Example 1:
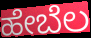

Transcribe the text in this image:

ಹೇಬೆಲ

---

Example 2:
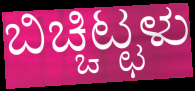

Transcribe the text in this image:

ಬಿಚ್ಚಿಟ್ಟಳು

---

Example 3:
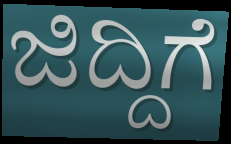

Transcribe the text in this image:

ಜಿದ್ದಿಗೆ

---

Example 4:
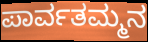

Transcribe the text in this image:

ಪಾರ್ವತಮ್ಮನ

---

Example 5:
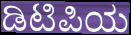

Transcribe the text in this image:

ಡಿಟಿಪಿಯ